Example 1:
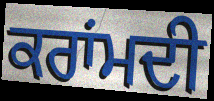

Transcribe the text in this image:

ਕਰਾਂਮਦੀ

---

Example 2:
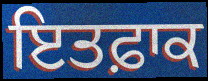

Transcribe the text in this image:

ਇਤਫ਼ਾਕ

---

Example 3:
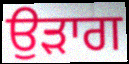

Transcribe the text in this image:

ਉੜਾਗ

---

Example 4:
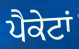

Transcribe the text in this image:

ਪੈਕੇਟਾਂ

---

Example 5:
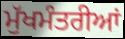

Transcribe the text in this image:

ਮੁੱਖਮੰਤਰੀਆਂ